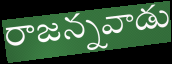
రాజన్నవాడు